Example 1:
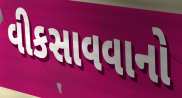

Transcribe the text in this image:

વીકસાવવાનો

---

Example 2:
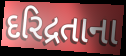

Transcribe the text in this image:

દરિદ્રતાના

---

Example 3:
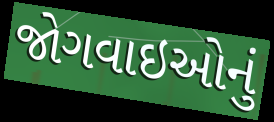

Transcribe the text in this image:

જોગવાઇઓનું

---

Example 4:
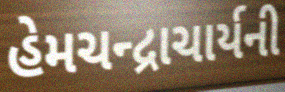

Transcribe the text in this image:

હેમચન્દ્રાચાર્યની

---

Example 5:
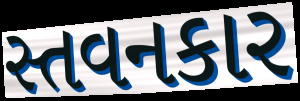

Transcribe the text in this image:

સ્તવનકાર